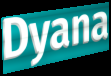
Dyana